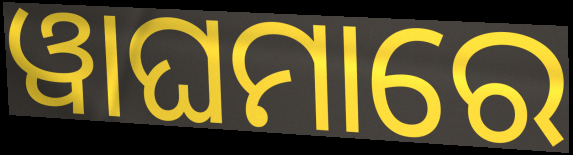
ୱାଘମାରେ